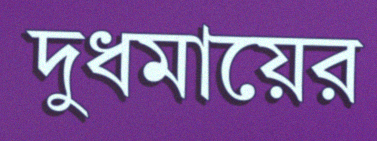
দুধমায়ের